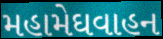
મહામેઘવાહન